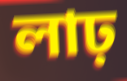
লাঢ়